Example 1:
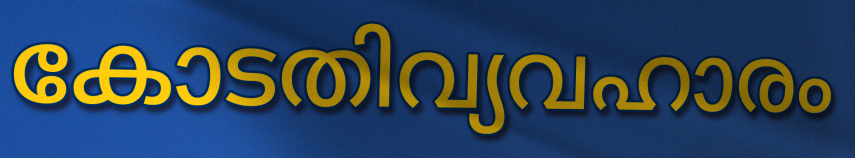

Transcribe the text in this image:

കോടതിവ്യവഹാരം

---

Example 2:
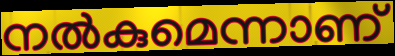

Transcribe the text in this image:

നൽകുമെന്നാണ്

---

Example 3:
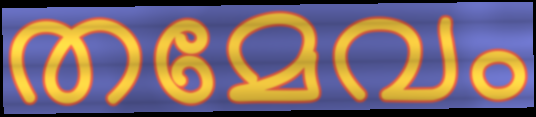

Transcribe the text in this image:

തമേവം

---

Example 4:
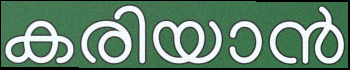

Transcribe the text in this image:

കരിയാൻ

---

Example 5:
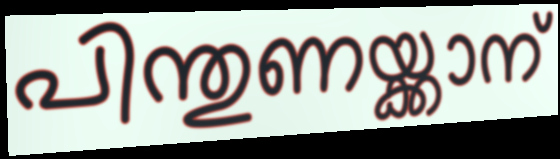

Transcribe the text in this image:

പിന്തുണയ്ക്കാന്